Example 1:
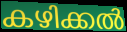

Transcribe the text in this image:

കഴിക്കൽ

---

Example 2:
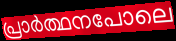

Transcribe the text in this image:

പ്രാർത്ഥനപോലെ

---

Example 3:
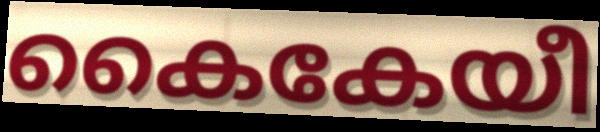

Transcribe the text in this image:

കൈകേയീ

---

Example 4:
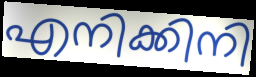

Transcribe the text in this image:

എനിക്കിനി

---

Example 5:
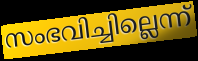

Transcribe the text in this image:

സംഭവിച്ചില്ലെന്ന്